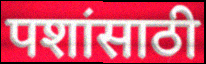
पशांसाठी